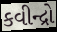
કવીન્દ્રો